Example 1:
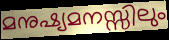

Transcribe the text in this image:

മനുഷ്യമനസ്സിലും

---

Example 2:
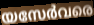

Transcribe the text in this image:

യസേർവരെ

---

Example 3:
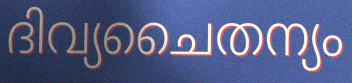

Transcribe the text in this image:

ദിവ്യചൈതന്യം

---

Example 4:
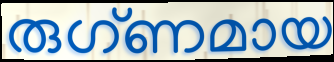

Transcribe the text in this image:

രുഗ്ണമായ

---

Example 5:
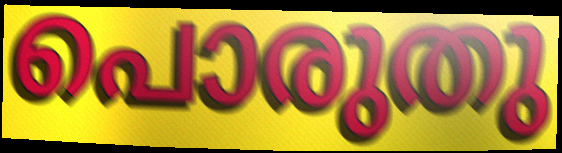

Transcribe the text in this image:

പൊരുതു